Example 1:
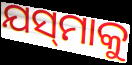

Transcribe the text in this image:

ଯସ୍‌ମାକୁ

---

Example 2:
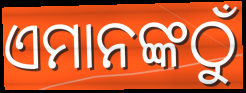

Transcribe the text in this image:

ଏମାନଙ୍କଠୁଁ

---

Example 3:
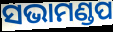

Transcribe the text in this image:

ସଭାମଣ୍ଡପ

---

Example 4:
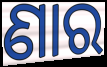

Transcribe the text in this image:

ଣାର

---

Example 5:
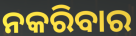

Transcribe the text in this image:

ନକରିବାର